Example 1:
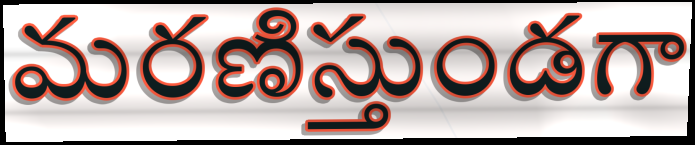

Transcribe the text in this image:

మరణిస్తుండగా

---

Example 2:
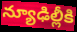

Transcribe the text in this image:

న్యూఢిల్లీకి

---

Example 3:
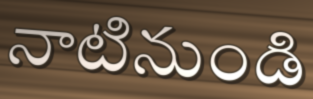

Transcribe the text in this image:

నాటినుండి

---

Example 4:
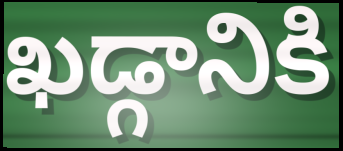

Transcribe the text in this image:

ఖడ్గానికి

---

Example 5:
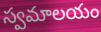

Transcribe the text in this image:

స్వమాలయం